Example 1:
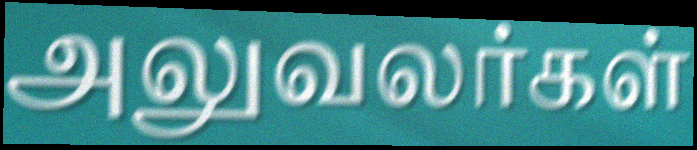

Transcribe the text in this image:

அலுவலர்கள்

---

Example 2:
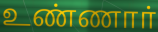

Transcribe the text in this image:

உண்ணார்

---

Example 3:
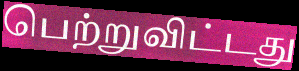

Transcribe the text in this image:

பெற்றுவிட்டது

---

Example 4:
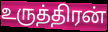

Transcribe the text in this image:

உருத்திரன்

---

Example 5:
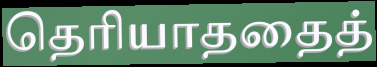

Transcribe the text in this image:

தெரியாததைத்